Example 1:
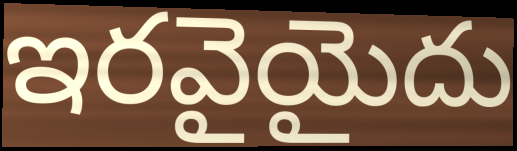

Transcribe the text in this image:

ఇరవైయైదు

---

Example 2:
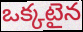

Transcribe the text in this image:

ఒక్కటైన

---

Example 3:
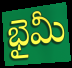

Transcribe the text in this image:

భైమీ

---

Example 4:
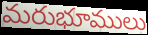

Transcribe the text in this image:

మరుభూములు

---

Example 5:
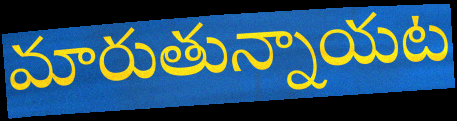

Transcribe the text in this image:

మారుతున్నాయట